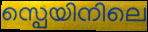
സ്പെയിനിലെ